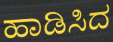
ಹಾಡಿಸಿದ